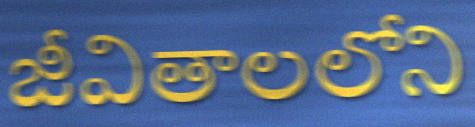
జీవితాలలోని